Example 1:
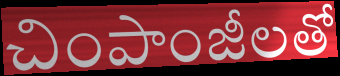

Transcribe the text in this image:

చింపాంజీలతో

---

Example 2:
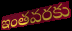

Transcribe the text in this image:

ఇంతవరకు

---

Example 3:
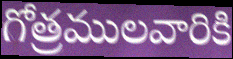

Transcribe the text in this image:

గోత్రములవారికి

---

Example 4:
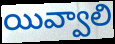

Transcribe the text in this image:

యివ్వాలి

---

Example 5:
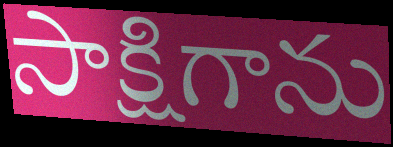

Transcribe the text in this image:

సాక్షిగాను